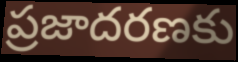
ప్రజాదరణకు